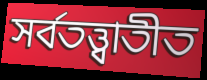
সর্বতত্ত্বাতীত